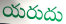
యరుదు